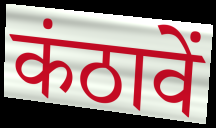
कंठावें